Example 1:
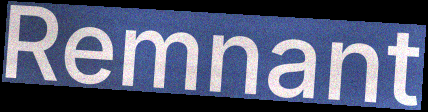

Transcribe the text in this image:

Remnant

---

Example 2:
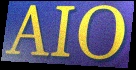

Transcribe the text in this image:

AIO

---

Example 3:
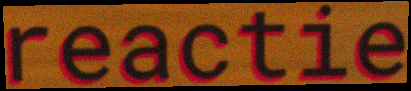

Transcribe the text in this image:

reactie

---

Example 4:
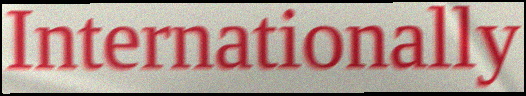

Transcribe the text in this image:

Internationally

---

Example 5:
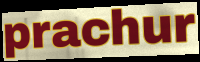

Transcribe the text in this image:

prachur